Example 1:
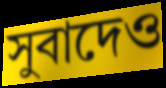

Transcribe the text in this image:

সুবাদেও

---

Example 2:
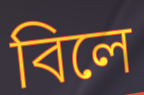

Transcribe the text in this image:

বিলে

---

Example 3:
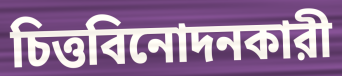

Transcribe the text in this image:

চিত্তবিনোদনকারী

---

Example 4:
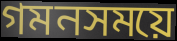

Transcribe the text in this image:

গমনসময়ে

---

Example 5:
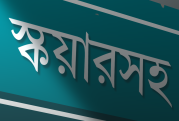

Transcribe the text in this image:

স্কয়ারসহ